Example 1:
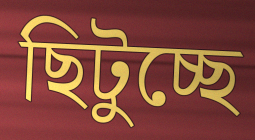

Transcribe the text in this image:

ছিটুচ্ছে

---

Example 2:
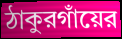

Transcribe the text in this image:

ঠাকুরগাঁয়ের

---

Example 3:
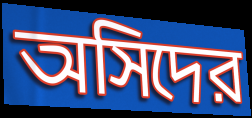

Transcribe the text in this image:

অসিদের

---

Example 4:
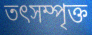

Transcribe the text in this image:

তৎসম্পৃক্ত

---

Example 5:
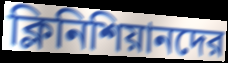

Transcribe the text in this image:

ক্লিনিশিয়ানদের